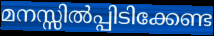
മനസ്സിൽപ്പിടിക്കേണ്ട